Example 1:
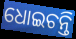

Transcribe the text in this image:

ଧୋଇଚନ୍ତି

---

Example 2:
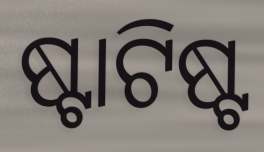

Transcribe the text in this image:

ଷ୍ଟାଟିଷ୍ଟ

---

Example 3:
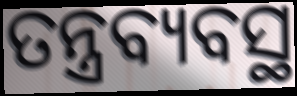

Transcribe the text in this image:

ତନ୍ତ୍ରବ୍ୟବସ୍ଥ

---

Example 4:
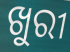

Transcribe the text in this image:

ଖୁରୀ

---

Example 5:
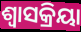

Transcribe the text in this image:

ଶ୍ବାସକ୍ରିୟା